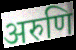
अरुणि